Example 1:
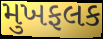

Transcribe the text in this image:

મુખફલક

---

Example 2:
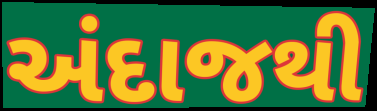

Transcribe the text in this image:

અંદાજથી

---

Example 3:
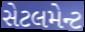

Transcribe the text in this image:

સેટલમેન્ટ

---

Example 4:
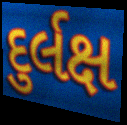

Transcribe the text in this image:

દુર્લક્ષ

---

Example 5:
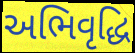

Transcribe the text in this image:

અભિવૃદ્ધિ